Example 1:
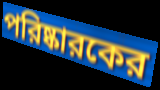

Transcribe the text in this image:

পরিষ্কারকের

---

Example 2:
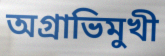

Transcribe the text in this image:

অগ্রাভিমুখী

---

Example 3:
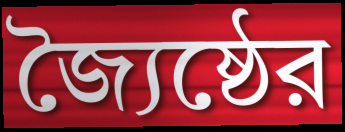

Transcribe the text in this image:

জ্যৈষ্ঠের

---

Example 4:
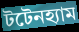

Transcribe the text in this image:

টটেনহ্যাম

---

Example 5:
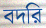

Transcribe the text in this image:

বদরি